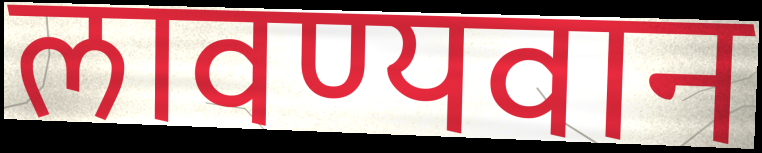
लावण्यवान